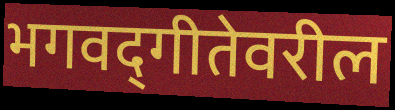
भगवद्‌गीतेवरील